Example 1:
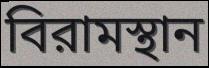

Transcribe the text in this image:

বিরামস্থান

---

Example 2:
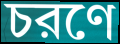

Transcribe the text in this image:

চরণে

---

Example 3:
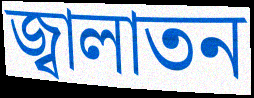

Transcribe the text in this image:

জ্বালাতন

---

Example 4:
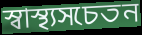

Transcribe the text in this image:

স্বাস্থ্যসচেতন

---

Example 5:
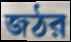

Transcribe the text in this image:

জঠর